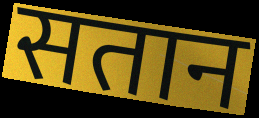
सतान